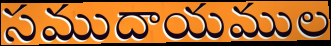
సముదాయముల